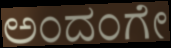
ಅಂದಂಗೇ